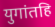
युगांतहि